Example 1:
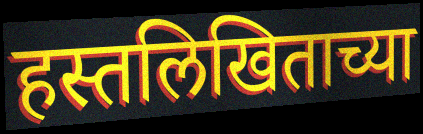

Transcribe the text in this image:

हस्तलिखिताच्या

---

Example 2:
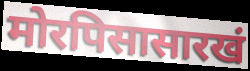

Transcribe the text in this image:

मोरपिसासारखं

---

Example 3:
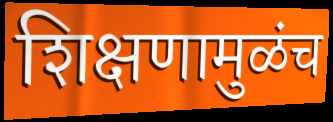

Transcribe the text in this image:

शिक्षणामुळंच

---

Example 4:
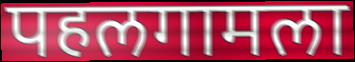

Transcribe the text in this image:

पहलगामला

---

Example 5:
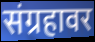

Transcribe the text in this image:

संग्रहावर